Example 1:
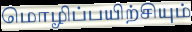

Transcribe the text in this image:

மொழிப்பயிற்சியும்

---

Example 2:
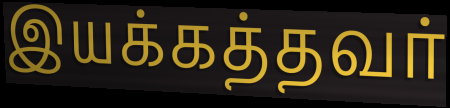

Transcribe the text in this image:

இயக்கத்தவர்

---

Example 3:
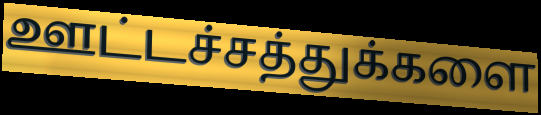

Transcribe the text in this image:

ஊட்டச்சத்துக்களை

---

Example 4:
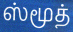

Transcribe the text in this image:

ஸ்மூத்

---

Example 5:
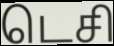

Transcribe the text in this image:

டெசி